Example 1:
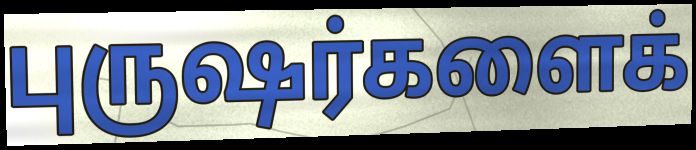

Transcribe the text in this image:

புருஷர்களைக்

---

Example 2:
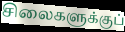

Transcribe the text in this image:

சிலைகளுக்குப்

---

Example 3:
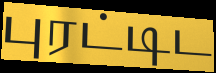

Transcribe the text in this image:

புரட்டிட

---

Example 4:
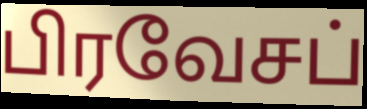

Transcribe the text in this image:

பிரவேசப்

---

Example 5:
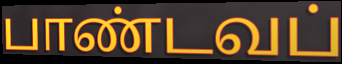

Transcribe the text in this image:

பாண்டவப்